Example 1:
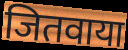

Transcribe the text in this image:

जितवाया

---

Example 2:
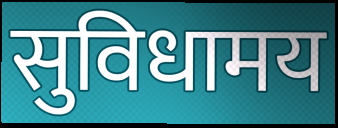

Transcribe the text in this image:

सुविधामय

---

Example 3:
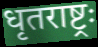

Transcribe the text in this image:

धृतराष्ट्रः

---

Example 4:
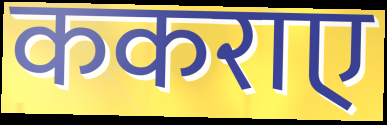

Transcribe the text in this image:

ककराए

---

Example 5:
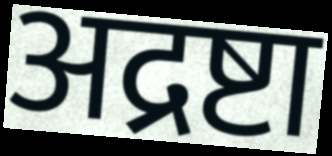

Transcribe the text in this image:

अद्रष्टा